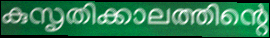
കുസൃതിക്കാലത്തിന്റെ